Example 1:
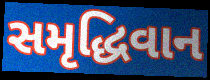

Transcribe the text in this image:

સમૃદ્ધિવાન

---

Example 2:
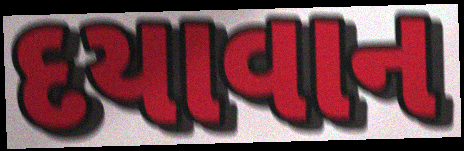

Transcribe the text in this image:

દયાવાન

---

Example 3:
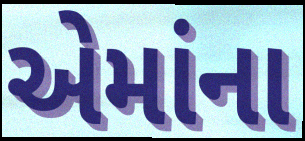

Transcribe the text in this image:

એમાંના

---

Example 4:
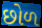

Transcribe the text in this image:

છોળ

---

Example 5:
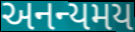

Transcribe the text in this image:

અનન્યમય